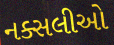
નક્સલીઓ